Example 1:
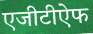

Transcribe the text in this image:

एजीटीऐफ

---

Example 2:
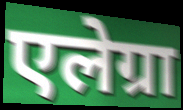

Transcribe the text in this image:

एलेग्रा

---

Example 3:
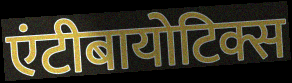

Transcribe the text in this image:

एंटीबायोटिक्स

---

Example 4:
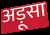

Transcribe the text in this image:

अड़ूसा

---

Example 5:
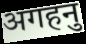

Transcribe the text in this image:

अगहनु